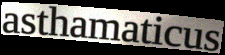
asthamaticus